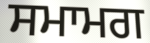
ਸਮਾਮਗ